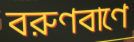
বরুণবাণে